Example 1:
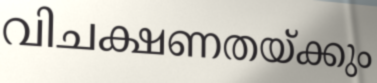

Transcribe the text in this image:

വിചക്ഷണതയ്ക്കും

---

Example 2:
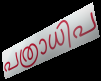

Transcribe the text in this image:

പത്രാധിപ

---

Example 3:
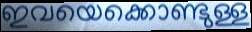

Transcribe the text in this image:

ഇവയെക്കൊണ്ടുള്ള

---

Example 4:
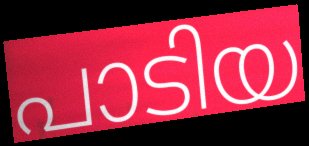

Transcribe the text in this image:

പാടിയ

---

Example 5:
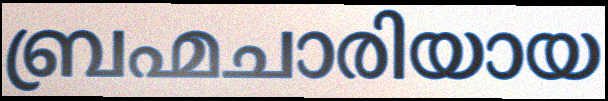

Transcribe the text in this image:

ബ്രഹ്മചാരിയായ